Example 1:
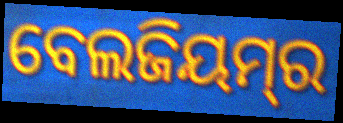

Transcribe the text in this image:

ବେଲଜିୟମ୍‌ର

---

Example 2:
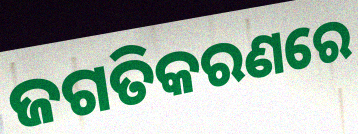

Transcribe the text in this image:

ଜଗତିକରଣରେ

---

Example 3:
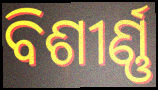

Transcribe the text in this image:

ବିଶୀର୍ଣ୍ଣ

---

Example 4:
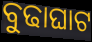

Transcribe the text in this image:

ବୁଢାଘାଟ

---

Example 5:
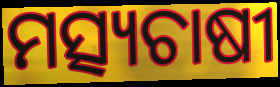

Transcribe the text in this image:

ମତ୍ସ୍ୟଚାଷୀ